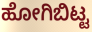
ಹೋಗಿಬಿಟ್ಟ